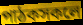
পাঠকসকলে